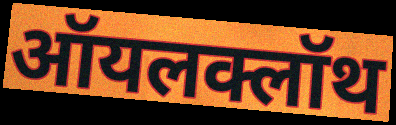
ऑयलक्लॉथ